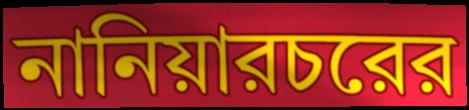
নানিয়ারচরের